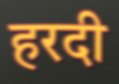
हरदी